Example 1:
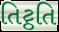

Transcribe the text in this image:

તિટ્ઠતિ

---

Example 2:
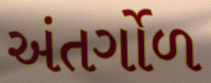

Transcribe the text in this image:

અંતર્ગોળ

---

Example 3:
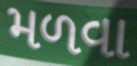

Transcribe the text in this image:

મળવા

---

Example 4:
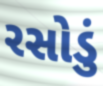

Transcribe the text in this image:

રસોડું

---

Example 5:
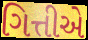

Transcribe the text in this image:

ગિત્તીએ